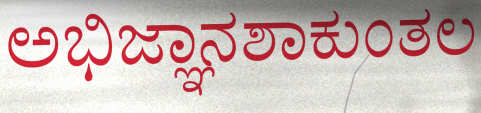
ಅಭಿಜ್ಞಾನಶಾಕುಂತಲ